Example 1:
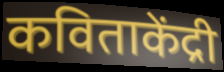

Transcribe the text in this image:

कविताकेंद्री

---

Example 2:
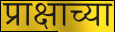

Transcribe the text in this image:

प्राक्षाच्या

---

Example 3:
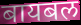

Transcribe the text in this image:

बायबल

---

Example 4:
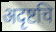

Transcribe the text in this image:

अदृष्टचि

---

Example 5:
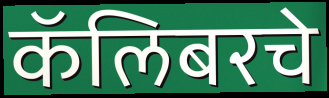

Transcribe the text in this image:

कॅलिबरचे